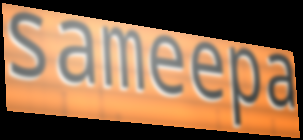
sameepa